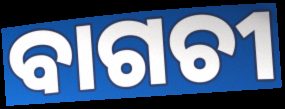
ବାଗଚୀ